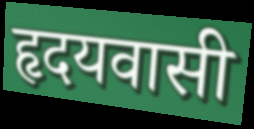
हृदयवासी